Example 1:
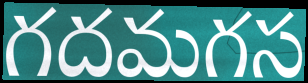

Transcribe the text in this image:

గదమగస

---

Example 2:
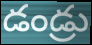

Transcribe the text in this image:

డండ్రు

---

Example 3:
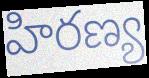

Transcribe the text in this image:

హిరణ్య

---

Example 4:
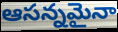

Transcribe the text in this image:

ఆసన్నమైనా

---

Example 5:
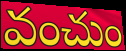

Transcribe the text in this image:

వంచుం